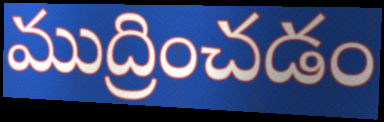
ముద్రించడం